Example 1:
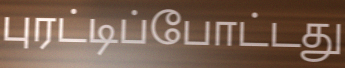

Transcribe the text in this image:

புரட்டிப்போட்டது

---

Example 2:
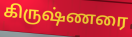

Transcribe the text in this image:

கிருஷ்ணரை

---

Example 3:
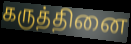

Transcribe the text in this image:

கருத்தினை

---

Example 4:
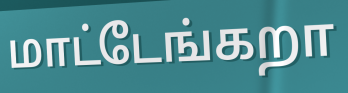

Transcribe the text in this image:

மாட்டேங்கறா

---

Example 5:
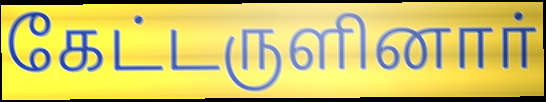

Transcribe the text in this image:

கேட்டருளினார்